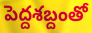
పెద్దశబ్దంతో